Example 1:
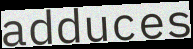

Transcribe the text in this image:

adduces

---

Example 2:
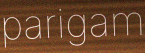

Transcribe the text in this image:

parigam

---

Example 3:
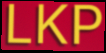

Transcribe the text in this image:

LKP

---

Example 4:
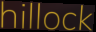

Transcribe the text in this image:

hillock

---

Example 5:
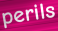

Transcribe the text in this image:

perils